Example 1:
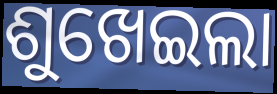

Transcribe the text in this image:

ଶୁଖେଇଲା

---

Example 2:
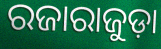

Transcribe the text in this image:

ରଜାରାଜୁଡ଼ା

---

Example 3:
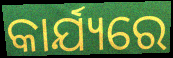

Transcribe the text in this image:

କାର୍ଯ୍ଯରେ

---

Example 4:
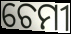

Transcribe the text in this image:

ଚେମୀ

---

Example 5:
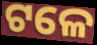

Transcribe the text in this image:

ଟଳେ